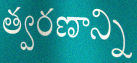
త్వరణాన్ని